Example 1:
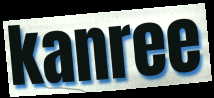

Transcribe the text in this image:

kanree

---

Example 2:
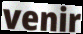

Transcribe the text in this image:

venir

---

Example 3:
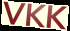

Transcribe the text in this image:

VKK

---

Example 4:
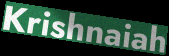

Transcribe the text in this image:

Krishnaiah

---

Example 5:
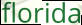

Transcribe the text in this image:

florida